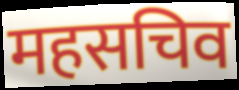
महसचिव